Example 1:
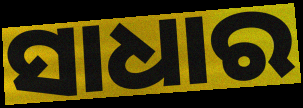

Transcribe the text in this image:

ସାଧାର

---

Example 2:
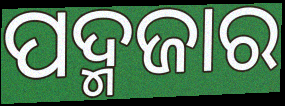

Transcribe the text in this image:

ପଦ୍ମଜାର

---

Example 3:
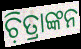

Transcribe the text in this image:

ଚ଼ିତ୍ରାଙ୍କନ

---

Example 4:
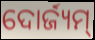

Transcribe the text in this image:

ଦୋର୍ଜ୍ୟମ୍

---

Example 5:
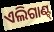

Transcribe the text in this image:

ଏଲିଗାଣ୍ଟ୍